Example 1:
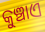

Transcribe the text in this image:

କୁଞ୍ଚାଏ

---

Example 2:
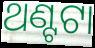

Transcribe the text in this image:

ଥଣ୍ଟଟା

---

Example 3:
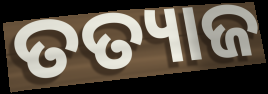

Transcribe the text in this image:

ତତ୍ୟାଜ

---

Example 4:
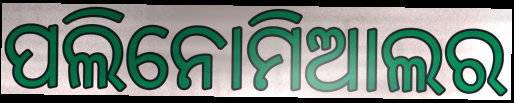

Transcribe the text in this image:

ପଲିନୋମିଆଲର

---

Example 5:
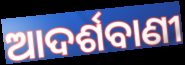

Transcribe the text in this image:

ଆଦର୍ଶବାଣୀ